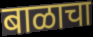
बाळाचा